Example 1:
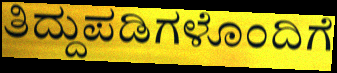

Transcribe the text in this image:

ತಿದ್ದುಪಡಿಗಳೊಂದಿಗೆ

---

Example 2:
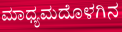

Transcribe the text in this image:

ಮಾಧ್ಯಮದೊಳಗಿನ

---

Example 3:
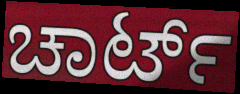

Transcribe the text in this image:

ಚಾರ್ಟ್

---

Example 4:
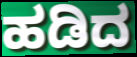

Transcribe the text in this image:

ಹಡಿದ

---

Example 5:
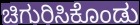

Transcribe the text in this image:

ಚಿಗುರಿಸಿಕೊಂಡು